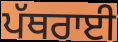
ਪੱਥਰਾਈ